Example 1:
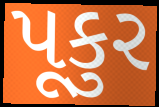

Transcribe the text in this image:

પૂકુર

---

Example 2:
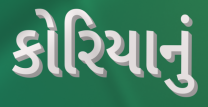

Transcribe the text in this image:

કોરિયાનું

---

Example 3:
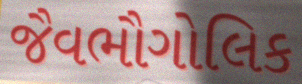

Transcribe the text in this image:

જૈવભૌગોલિક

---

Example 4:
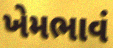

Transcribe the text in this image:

ખેમભાવં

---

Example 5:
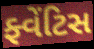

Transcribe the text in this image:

ફ્વેંટિસ